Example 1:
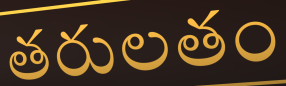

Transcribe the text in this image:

తరులతం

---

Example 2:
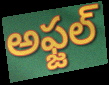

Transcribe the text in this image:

అఫ్జల్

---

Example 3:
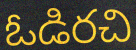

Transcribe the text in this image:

ఓడిరచి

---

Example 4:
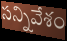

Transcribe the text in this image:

సన్నివేశం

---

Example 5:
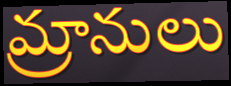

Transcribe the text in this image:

మ్రానులు